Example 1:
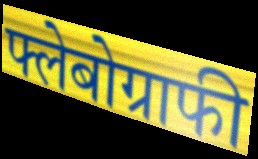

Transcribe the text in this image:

फ्लेबोग्राफी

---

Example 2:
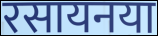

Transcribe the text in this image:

रसायनया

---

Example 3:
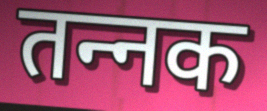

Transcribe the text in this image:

तन्नक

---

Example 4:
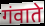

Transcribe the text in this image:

गंवाते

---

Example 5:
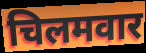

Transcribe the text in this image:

चिलमवार